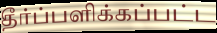
தீர்ப்பளிக்கப்பட்ட